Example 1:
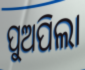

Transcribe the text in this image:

ପୁଅପିଲା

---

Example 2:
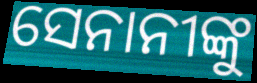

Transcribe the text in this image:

ସେନାନୀଙ୍କୁ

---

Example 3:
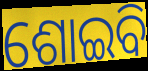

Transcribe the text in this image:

ଶୋଇବି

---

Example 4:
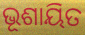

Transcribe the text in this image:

ଭୂଶାୟିତ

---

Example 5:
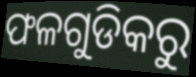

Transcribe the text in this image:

ଫଳଗୁଡିକରୁ